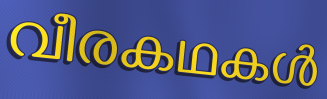
വീരകഥകൾ